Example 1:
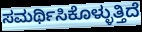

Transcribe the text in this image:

ಸಮರ್ಥಿಸಿಕೊಳ್ಳುತ್ತಿದೆ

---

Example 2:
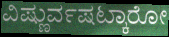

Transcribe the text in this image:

ವಿಷ್ಣುರ್ವಷಟ್ಕಾರೋ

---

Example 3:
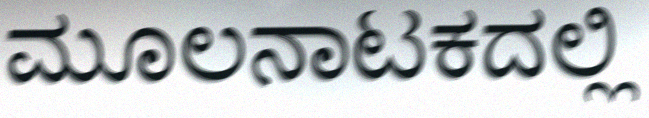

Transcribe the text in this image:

ಮೂಲನಾಟಕದಲ್ಲಿ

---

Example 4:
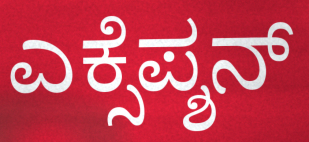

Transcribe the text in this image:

ಎಕ್ಸೆಪ್ಶನ್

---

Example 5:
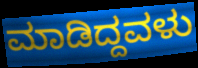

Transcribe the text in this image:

ಮಾಡಿದ್ದವಳು